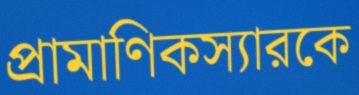
প্রামাণিকস্যারকে